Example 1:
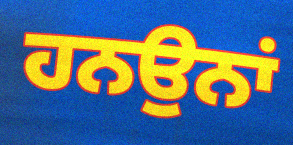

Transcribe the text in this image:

ਹਨਉਨਾਂ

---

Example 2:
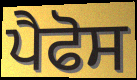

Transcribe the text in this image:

ਪੈਫੋਸ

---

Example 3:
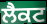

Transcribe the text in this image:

ਲੈਕਟ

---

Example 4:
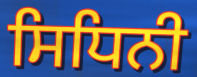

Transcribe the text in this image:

ਸਿਧਿਨੀ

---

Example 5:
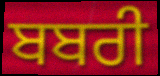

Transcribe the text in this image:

ਬਬਰੀ